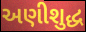
અણીશુદ્ધ